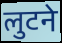
लुटने